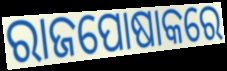
ରାଜପୋଷାକରେ